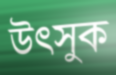
উৎসুক